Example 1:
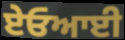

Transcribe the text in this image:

ਏਓਆਈ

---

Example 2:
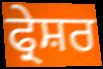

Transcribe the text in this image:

ਫ੍ਰੇਸ਼ਰ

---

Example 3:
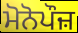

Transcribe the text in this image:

ਮੋਨੋਪੌਜ਼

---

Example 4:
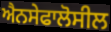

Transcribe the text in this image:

ਐਨਸੇਫਾਲੋਸੀਲ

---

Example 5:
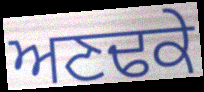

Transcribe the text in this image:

ਅਣਢਕੇ